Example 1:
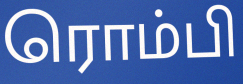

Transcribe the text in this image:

ரொம்பி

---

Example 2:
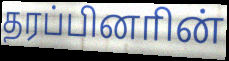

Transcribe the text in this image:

தரப்பினரின்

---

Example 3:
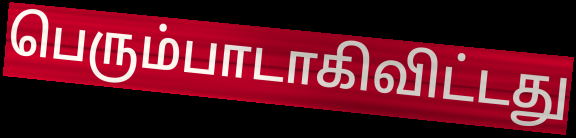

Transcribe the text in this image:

பெரும்பாடாகிவிட்டது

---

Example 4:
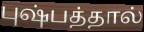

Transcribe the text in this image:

புஷ்பத்தால்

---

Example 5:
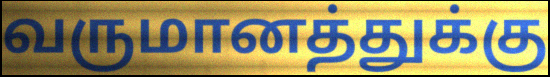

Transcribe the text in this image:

வருமானத்துக்கு